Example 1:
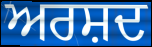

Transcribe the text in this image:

ਅਰਸ਼ਦ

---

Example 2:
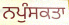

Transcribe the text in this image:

ਨਪੁੰਸਕਤਾ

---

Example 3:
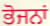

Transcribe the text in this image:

ਭੋਜਨਾਂ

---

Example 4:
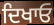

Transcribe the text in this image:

ਦਿਖਾਓ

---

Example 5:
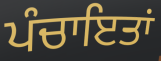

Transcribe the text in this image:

ਪੰਚਾਇਤਾਂ